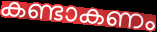
കണ്ടാകണം